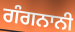
ਗੰਗਨਾਨੀ